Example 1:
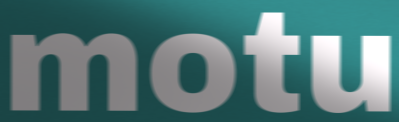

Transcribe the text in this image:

motu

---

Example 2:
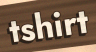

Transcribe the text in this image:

tshirt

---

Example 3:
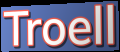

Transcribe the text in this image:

Troell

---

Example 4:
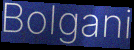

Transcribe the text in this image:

Bolgani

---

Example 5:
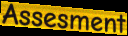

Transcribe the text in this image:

Assesment